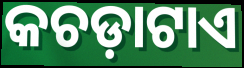
କଚଡ଼ାଟାଏ